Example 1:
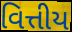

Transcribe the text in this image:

વિત્તીય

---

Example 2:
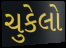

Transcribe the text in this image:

ચુકેલો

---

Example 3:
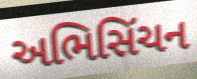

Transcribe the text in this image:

અભિસિંચન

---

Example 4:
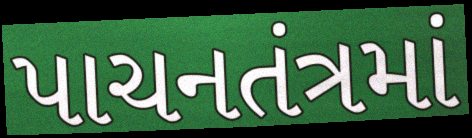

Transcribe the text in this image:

પાચનતંત્રમાં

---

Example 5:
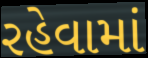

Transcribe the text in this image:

રહેવામાં